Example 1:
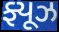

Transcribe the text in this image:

ફ્યૂઝ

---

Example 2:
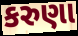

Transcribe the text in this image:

કરુણા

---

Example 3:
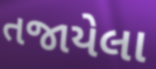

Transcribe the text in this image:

તજાયેલા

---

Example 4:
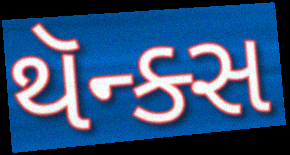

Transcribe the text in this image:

થૅન્ક્સ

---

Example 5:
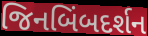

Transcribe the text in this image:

જિનબિંબદર્શન